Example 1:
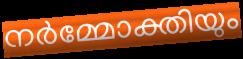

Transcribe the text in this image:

നർമ്മോക്തിയും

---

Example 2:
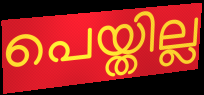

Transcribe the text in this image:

പെയ്തില്ല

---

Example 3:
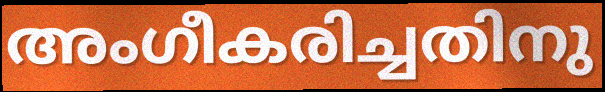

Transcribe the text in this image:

അംഗീകരിച്ചതിനു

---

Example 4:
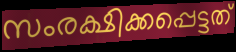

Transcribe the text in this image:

സംരക്ഷിക്കപ്പെട്ടത്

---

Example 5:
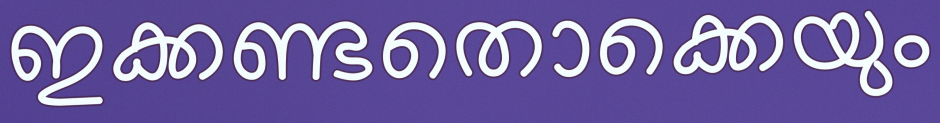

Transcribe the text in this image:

ഇക്കണ്ടതൊക്കെയും